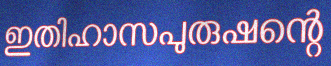
ഇതിഹാസപുരുഷന്റെ